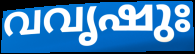
വവൃഷുഃ